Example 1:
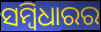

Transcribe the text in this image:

ସମ୍ବିଧାରର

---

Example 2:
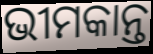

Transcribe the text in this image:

ଭୀମକାନ୍ତ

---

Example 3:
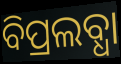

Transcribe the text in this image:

ବିପ୍ରଲବ୍ଧା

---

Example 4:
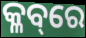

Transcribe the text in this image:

କ୍ଳବ୍‌ରେ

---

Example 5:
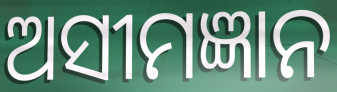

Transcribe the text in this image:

ଅସୀମଜ୍ଞାନ